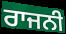
ਰਾਜਨੀ